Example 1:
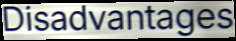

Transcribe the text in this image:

Disadvantages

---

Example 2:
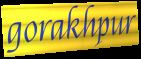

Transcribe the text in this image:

gorakhpur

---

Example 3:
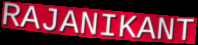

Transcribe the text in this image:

RAJANIKANT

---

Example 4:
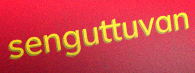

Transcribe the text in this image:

senguttuvan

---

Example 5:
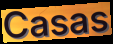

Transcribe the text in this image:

Casas